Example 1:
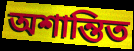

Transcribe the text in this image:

অশান্তিত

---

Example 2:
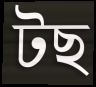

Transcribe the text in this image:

টছ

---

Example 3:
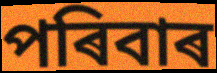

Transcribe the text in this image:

পৰিবাৰ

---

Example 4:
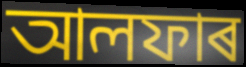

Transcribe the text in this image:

আলফাৰ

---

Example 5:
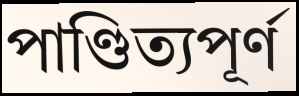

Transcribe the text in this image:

পাণ্ডিত্যপূৰ্ণ